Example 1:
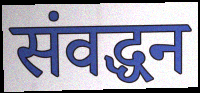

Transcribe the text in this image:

संवद्धन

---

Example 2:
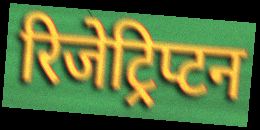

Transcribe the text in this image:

रिजेट्रिप्टन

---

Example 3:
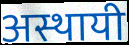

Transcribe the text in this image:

अस्थायी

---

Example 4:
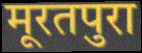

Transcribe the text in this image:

मूरतपुरा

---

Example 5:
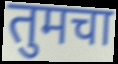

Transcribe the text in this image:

तुमचा